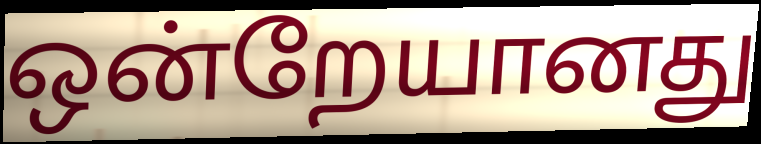
ஒன்றேயானது